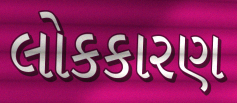
લોકકારણ